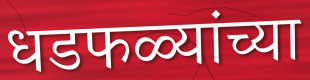
धडफळ्यांच्या